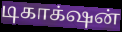
டிகாக்‌ஷன்